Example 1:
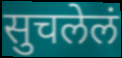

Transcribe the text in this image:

सुचलेलं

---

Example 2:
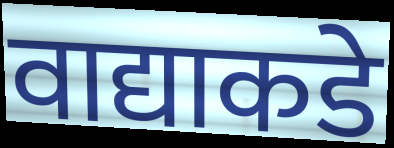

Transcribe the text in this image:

वाद्याकडे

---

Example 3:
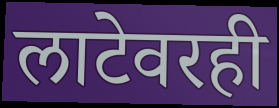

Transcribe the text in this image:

लाटेवरही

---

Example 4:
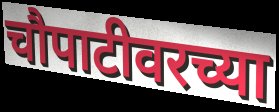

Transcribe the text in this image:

चौपाटीवरच्या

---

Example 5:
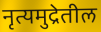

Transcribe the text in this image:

नृत्यमुद्रेतील